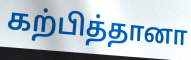
கற்பித்தானா